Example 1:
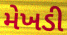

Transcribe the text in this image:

મેખડી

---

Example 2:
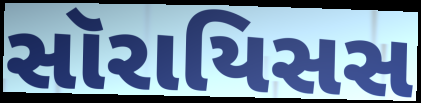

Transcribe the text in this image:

સૉરાયિસસ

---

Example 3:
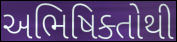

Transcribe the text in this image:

અભિષિક્તોથી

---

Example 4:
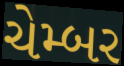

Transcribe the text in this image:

ચેમ્બર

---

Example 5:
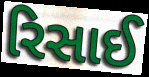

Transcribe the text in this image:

રિસાઈ